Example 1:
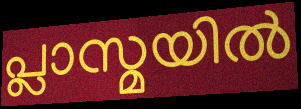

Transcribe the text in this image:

പ്ലാസ്മയിൽ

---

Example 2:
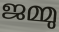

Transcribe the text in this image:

ജമ്മു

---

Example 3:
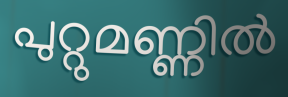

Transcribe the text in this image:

പുറ്റുമണ്ണിൽ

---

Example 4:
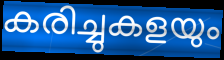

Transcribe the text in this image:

കരിച്ചുകളയും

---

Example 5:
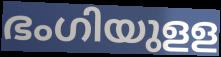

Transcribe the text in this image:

ഭംഗിയുളള